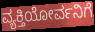
ವ್ಯಕ್ತಿಯೋರ್ವನಿಗೆ